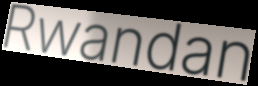
Rwandan